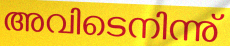
അവിടെനിന്നു്